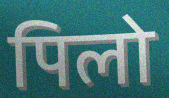
पिलो